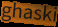
ghaski